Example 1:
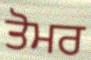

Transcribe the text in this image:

ਤੋਮਰ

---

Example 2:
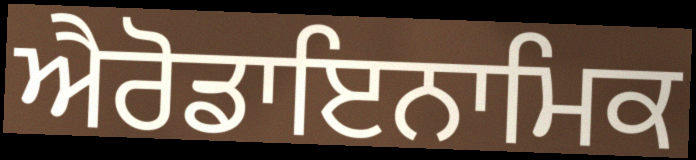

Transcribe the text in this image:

ਐਰੋਡਾਇਨਾਮਿਕ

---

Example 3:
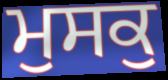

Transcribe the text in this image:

ਮੁਸਕੁ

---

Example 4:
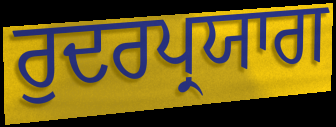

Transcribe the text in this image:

ਰੁਦਰਪ੍ਰਯਾਗ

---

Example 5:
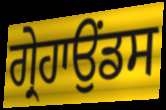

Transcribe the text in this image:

ਗ੍ਰੇਹਾਉਂਡਸ